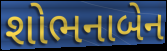
શોભનાબેન